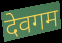
देवगम